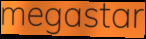
megastar